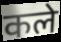
कले